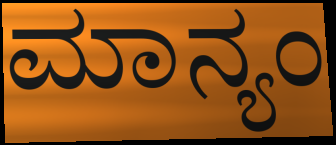
ಮಾನ್ಯಂ